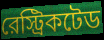
রেস্ট্রিকটেড